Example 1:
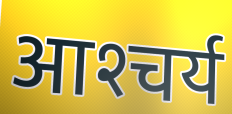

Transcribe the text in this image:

आश्चर्य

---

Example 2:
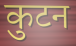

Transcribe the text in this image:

कुटन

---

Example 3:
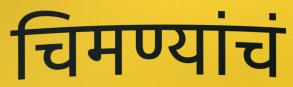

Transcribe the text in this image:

चिमण्यांचं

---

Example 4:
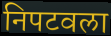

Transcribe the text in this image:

निपटवला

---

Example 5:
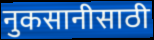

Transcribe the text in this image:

नुकसानीसाठी